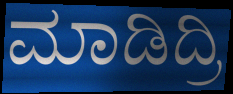
ಮಾಡಿದ್ರಿ